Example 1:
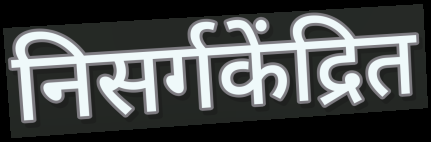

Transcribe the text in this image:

निसर्गकेंद्रित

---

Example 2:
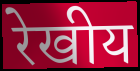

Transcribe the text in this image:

रेखीय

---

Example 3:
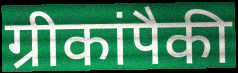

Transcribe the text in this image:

ग्रीकांपैकी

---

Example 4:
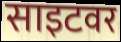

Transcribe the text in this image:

साइटवर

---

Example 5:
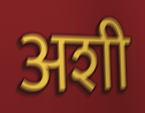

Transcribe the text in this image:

अशी